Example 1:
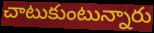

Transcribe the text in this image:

చాటుకుంటున్నారు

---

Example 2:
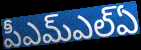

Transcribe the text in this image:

పీఎమ్ఎల్ఏ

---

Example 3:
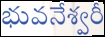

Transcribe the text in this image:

భువనేశ్వరీ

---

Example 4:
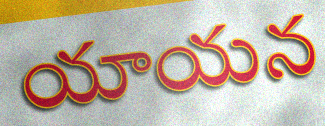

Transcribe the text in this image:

యాయన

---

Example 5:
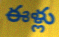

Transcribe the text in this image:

ఈళ్లు